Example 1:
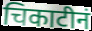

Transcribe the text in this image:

चिकाटीनं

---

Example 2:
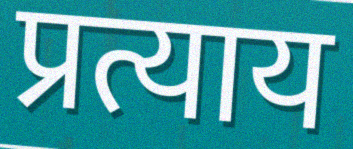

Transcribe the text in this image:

प्रत्याय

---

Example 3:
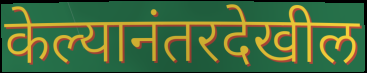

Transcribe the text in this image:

केल्यानंतरदेखील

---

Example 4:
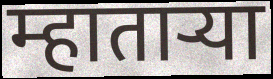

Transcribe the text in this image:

म्हातार्‍या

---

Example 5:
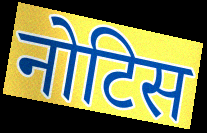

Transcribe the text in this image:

नोटिस